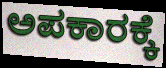
ಅಪಕಾರಕ್ಕೆ